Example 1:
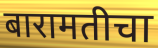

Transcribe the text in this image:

बारामतीचा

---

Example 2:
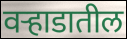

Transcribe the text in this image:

वर्‍हाडातील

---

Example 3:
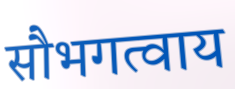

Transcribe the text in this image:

सौभगत्वाय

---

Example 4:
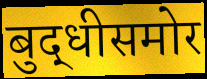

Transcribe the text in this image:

बुद्धीसमोर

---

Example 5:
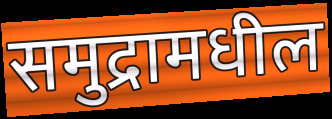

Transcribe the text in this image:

समुद्रामधील